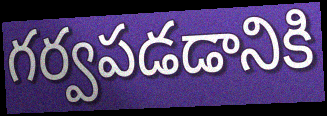
గర్వపడడానికి